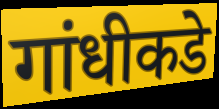
गांधीकडे